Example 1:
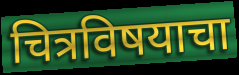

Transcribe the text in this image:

चित्रविषयाचा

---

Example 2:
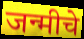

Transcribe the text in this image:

जन्मीचे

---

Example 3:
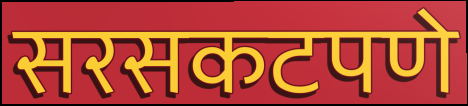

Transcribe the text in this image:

सरसकटपणे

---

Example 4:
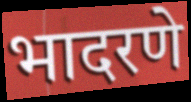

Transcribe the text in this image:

भादरणे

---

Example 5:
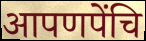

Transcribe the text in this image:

आपणपेंचि